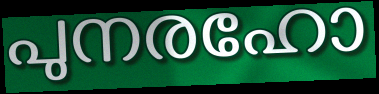
പുനരഹോ